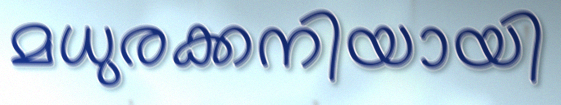
മധുരക്കനിയായി